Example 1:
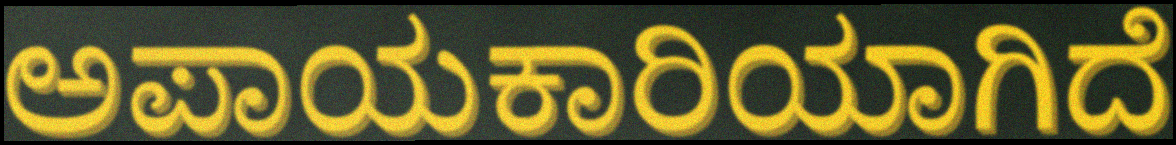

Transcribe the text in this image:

ಅಪಾಯಕಾರಿಯಾಗಿದೆ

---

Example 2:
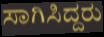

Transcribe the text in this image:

ಸಾಗಿಸಿದ್ದರು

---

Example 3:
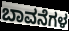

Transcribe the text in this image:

ಬಾವನೆಗಳ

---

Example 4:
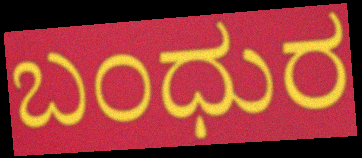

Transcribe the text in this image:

ಬಂಧುರ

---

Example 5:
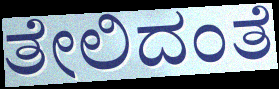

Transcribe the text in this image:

ತೇಲಿದಂತೆ